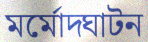
মর্মোদ্ঘাটন